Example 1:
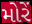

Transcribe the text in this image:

મોરેં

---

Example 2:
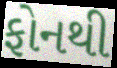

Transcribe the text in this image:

ફોનથી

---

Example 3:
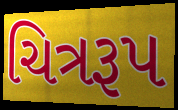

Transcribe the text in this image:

ચિત્રરૂપ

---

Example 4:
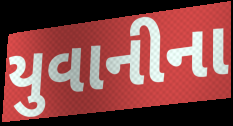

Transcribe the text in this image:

યુવાનીના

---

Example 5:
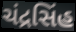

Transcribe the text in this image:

ચંદ્રસિંહ